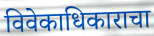
विवेकाधिकाराचा